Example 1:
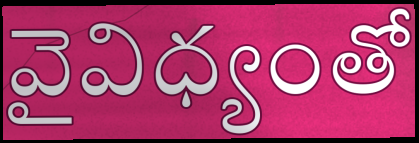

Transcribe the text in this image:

వైవిధ్యంతో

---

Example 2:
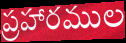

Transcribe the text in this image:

ప్రహారముల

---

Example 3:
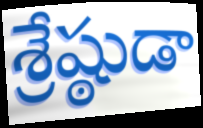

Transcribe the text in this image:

శ్రేష్ఠుడా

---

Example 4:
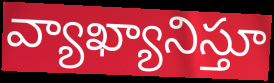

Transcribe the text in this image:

వ్యాఖ్యానిస్తూ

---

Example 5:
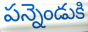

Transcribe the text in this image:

పన్నెండుకి